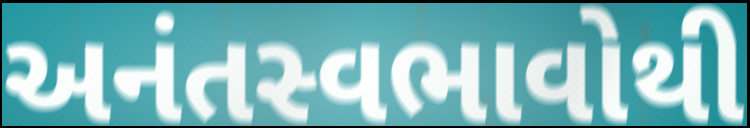
અનંતસ્વભાવોથી